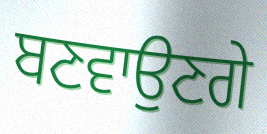
ਬਣਵਾਉਣਗੇ